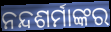
ନନ୍ଦଶର୍ମାଙ୍କର